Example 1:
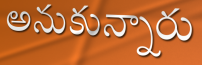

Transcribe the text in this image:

అనుకున్నారు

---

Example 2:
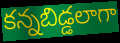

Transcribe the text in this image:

కన్నబిడ్డలాగా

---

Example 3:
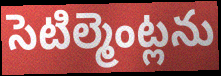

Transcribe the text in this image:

సెటిల్మెంట్లను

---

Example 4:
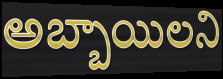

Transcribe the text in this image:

అబ్బాయిలని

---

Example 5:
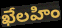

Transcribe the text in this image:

ఖేలహిం